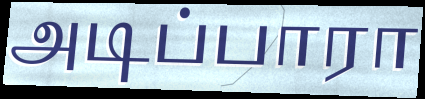
அடிப்பாரா